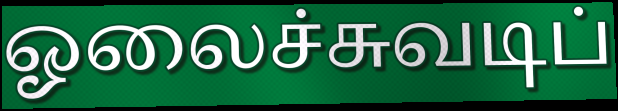
ஓலைச்சுவடிப்